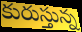
కురుస్తున్న